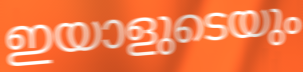
ഇയാളുടെയും